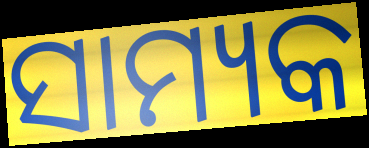
ସାମ୍ୟକ